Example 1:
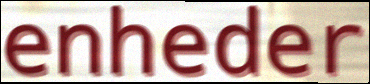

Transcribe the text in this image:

enheder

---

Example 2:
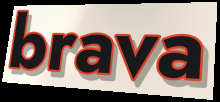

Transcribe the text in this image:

brava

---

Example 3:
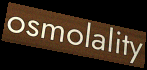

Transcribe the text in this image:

osmolality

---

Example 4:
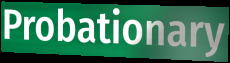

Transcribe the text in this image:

Probationary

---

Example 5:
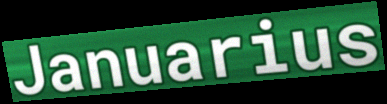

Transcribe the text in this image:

Januarius